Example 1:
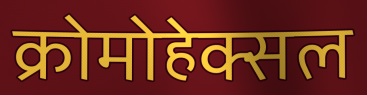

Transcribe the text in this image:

क्रोमोहेक्सल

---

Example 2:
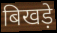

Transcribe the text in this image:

बिखड़े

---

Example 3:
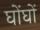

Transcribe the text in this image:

घोंघों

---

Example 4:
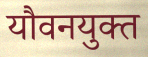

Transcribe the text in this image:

यौवनयुक्त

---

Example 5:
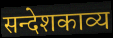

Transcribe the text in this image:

सन्देशकाव्य